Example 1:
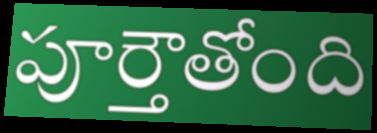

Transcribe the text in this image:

పూర్తౌతోంది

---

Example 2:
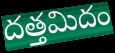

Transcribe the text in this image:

దత్తమిదం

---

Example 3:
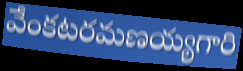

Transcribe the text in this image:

వేంకటరమణయ్యగారి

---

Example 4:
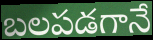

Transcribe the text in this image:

బలపడగానే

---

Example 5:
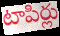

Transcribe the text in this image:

టాపిర్లు